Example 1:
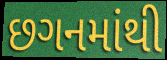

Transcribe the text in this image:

છગનમાંથી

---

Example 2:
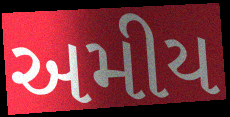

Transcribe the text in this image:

અમીય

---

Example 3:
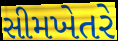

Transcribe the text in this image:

સીમખેતરે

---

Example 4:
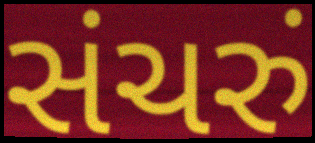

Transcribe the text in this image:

સંચરું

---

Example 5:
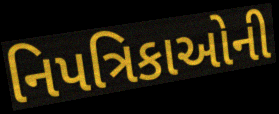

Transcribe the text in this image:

નિપત્રિકાઓની